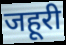
जहूरी